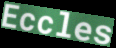
Eccles